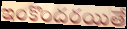
ఇంకొందరయితే